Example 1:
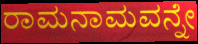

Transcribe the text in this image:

ರಾಮನಾಮವನ್ನೇ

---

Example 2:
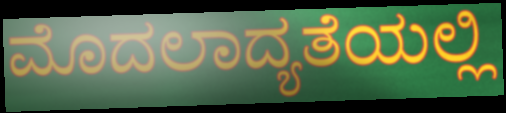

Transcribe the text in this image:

ಮೊದಲಾದ್ಯತೆಯಲ್ಲಿ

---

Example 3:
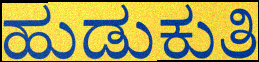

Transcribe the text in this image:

ಹುಡುಕುತಿ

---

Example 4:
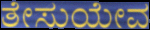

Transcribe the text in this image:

ತೇಸುಯೇವ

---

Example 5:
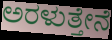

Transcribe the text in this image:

ಅರಳುತ್ತೇನೆ